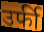
उर्फी